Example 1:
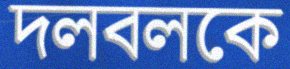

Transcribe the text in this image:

দলবলকে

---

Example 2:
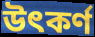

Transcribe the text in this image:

উৎকর্ণ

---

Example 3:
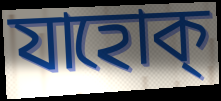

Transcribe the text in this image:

যাহোক্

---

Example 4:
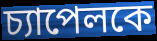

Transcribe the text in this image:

চ্যাপেলকে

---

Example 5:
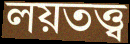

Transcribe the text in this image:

লয়তত্ত্ব